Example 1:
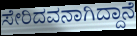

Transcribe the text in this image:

ಸೇರಿದವನಾಗಿದ್ದಾನೆ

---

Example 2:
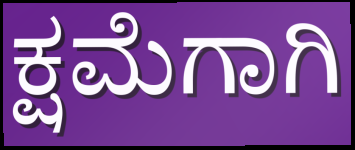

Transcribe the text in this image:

ಕ್ಷಮೆಗಾಗಿ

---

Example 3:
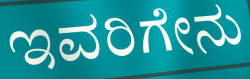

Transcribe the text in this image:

ಇವರಿಗೇನು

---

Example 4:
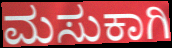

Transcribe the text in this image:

ಮಸುಕಾಗಿ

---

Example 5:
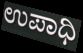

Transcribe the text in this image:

ಉಪಾಧಿ